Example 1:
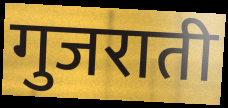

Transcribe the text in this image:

गुजराती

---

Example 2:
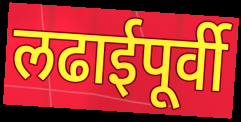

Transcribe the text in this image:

लढाईपूर्वी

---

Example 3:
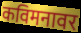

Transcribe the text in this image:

कविमनावर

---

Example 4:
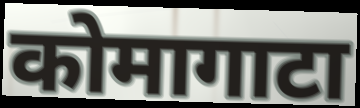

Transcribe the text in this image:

कोमागाटा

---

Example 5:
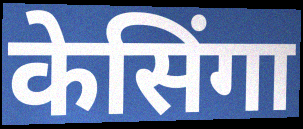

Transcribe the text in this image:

केसिंगा